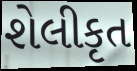
શેલીકૃત